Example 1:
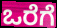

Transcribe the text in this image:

ಒರೆಗೆ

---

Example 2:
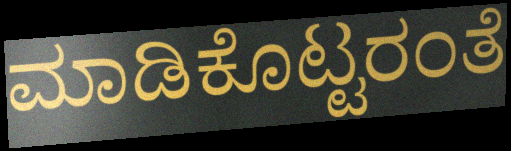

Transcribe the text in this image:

ಮಾಡಿಕೊಟ್ಟರಂತೆ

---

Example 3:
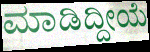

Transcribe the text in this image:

ಮಾಡಿದ್ದೀಯೆ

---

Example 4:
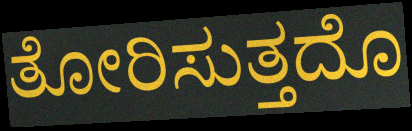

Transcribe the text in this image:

ತೋರಿಸುತ್ತದೊ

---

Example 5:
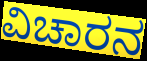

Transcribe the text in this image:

ವಿಚಾರನ